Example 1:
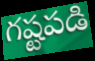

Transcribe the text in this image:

గష్టపడి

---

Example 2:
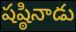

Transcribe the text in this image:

షష్ఠినాడు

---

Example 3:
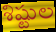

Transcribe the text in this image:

శిష్టుల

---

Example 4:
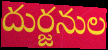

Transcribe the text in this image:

దుర్జనుల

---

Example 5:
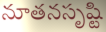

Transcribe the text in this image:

నూతనసృష్టి